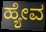
ಹ್ಯೇವ